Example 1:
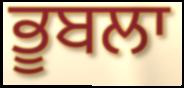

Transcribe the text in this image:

ਭੂਬਲਾ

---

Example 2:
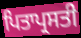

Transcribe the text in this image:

ਪਿਤਾਪ੍ਰਸਤੀ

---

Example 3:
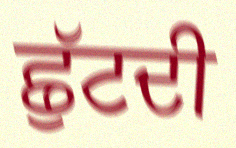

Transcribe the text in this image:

ਛੁੱਟਦੀ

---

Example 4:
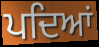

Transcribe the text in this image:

ਪਦਿਆਂ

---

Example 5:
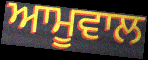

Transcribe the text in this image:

ਆਮੂਵਾਲ